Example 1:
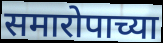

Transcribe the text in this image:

समारोपाच्या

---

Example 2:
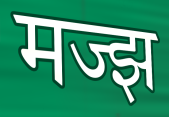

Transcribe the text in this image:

मज्झ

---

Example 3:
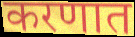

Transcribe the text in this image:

करणात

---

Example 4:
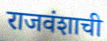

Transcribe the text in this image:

राजवंशाची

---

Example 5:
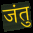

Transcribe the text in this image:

जंतु